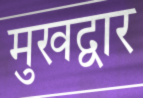
मुखद्वार